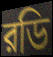
রডি